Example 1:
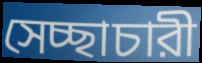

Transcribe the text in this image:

সেচ্ছাচারী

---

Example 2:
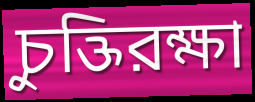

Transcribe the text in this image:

চুক্তিরক্ষা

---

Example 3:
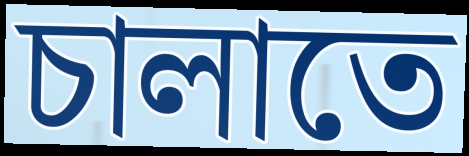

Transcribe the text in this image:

চালাতে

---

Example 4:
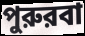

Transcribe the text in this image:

পুরুরবা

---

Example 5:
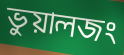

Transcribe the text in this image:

ভুয়ালজং